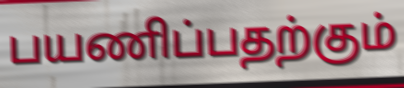
பயணிப்பதற்கும்